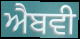
ਐਬਵੀ